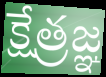
క్షేత్రజ్ఞ